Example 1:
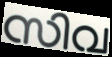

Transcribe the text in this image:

സിവ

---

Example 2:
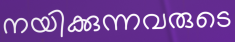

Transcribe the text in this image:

നയിക്കുന്നവരുടെ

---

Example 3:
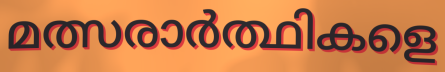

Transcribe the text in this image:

മത്സരാർത്ഥികളെ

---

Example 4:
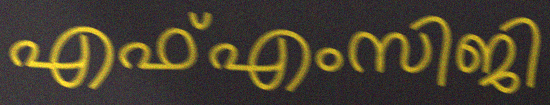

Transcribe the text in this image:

എഫ്എംസിജി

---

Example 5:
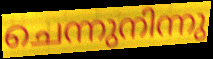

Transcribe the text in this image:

ചെന്നുനിന്നു